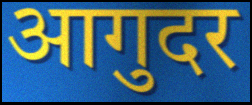
आगुदर